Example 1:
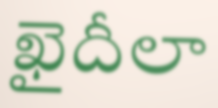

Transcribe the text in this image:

ఖైదీలా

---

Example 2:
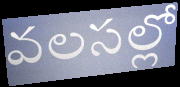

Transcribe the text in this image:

వలసల్లో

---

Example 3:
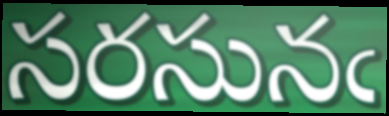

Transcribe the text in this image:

సరసునఁ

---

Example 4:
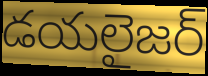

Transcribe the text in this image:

డయలైజర్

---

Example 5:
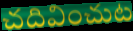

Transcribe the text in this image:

చదివించుట